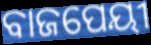
ବାଜପେୟୀ